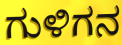
ಗುಳಿಗನ